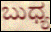
ಬುಧ್ಯ